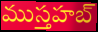
ముస్తహబ్